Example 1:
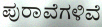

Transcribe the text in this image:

ಪುರಾವೆಗಳಿವೆ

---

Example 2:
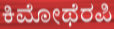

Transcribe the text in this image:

ಕಿಮೋಥೆರಪಿ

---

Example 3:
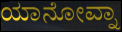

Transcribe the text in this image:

ಯಾನೋವ್ನಾ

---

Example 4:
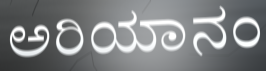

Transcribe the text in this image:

ಅರಿಯಾನಂ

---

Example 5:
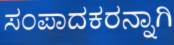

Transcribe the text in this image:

ಸಂಪಾದಕರನ್ನಾಗಿ